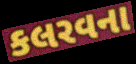
કલરવના